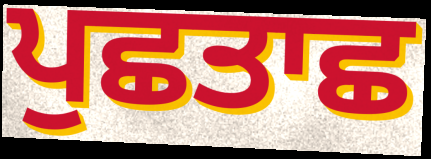
ਪੁਛਤਾਛ